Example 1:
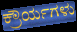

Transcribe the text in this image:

ಕ್ರೌರ್ಯಗಳು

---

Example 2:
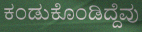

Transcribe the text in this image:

ಕಂಡುಕೊಂಡಿದ್ದೆವು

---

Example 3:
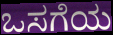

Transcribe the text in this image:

ಒಸಗೆಯ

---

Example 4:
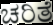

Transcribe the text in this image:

ಚರಿತೆ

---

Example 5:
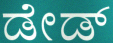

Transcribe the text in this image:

ಡೇಡ್